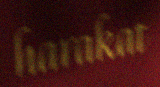
harakat